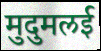
मुदुमलई